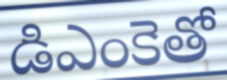
డిఎంకెతో